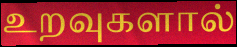
உறவுகளால்